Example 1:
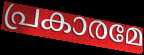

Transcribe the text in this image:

പ്രകാരമേ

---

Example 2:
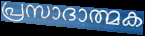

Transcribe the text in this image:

പ്രസാദാത്മക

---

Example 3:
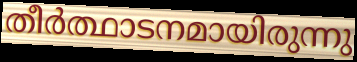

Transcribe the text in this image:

തീർത്ഥാടനമായിരുന്നു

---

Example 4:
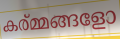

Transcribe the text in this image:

കര്മ്മങ്ങളോ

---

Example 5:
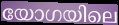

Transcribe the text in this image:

യോഗയിലെ